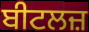
ਬੀਟਲਜ਼